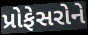
પ્રોફેસરોને